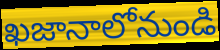
ఖజానాలోనుండి